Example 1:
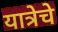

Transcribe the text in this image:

यात्रेचे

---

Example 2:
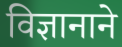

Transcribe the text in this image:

विज्ञानाने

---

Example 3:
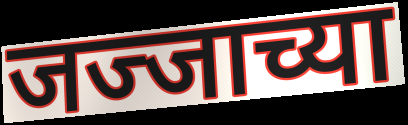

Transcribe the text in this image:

जज्जाच्या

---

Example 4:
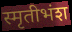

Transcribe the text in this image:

स्मृतीभंश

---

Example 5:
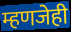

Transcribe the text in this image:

म्हणजेही